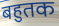
बहुतक